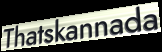
Thatskannada